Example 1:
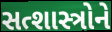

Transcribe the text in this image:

સત્શાસ્ત્રોને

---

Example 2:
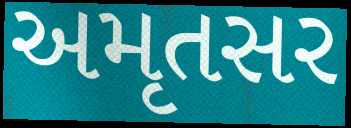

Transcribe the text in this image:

અમૃતસર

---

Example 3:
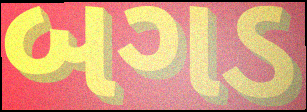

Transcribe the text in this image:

બગડ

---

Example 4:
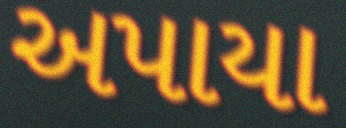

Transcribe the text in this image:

અપાયા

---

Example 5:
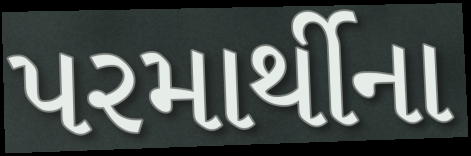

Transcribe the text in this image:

પરમાર્થીના